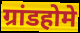
ग्रांडहोमे